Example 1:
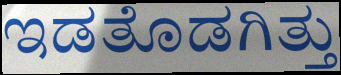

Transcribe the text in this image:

ಇಡತೊಡಗಿತ್ತು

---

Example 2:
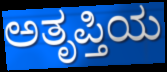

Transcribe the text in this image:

ಅತೃಪ್ತಿಯ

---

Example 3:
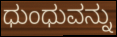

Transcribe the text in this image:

ಧುಂಧುವನ್ನು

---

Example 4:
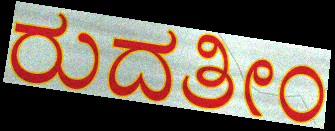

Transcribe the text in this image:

ರುದತೀಂ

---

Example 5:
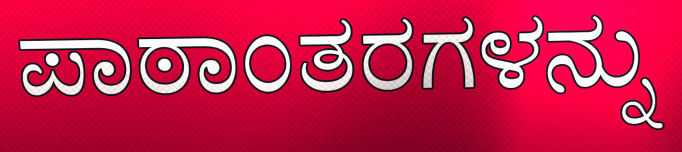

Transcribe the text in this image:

ಪಾಠಾಂತರಗಳನ್ನು